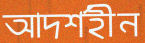
আদৰ্শহীন